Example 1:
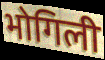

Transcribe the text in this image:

भोगिली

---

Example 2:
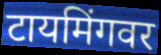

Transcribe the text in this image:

टायमिंगवर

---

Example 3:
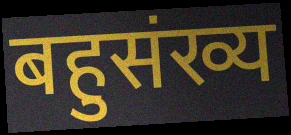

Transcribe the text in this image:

बहुसंख्य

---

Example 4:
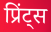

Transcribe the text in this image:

प्रिंट्स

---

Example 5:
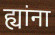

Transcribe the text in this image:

ह्यांना